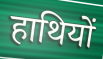
हाथियों